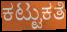
ಕಟ್ಟುಕತೆ